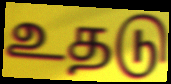
உதடு